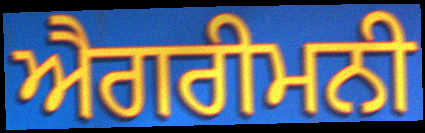
ਐਗਰੀਮਨੀ